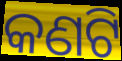
କଣଟି